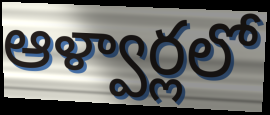
ఆళ్వార్లలో